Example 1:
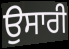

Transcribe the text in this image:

ਉਸਾਰੀ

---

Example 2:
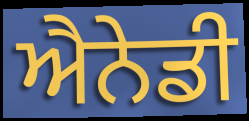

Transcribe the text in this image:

ਐਨੇਡੀ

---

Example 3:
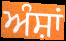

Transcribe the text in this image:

ਅੰਸ਼ਾਂ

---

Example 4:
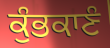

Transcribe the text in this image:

ਕੁੰਭਕਾਣੰ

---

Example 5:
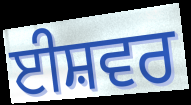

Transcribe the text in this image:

ਈਸ਼ਵਰ